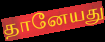
தானேயது